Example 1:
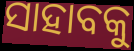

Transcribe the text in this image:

ସାହାବକୁ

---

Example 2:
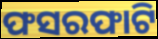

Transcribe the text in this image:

ଫସରଫାଟି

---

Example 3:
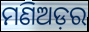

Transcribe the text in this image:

ମଣିଅଡ଼ର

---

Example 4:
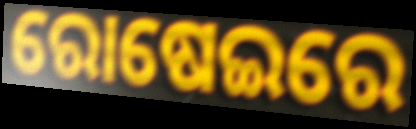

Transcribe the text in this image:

ରୋଷେଇରେ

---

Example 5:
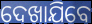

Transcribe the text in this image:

ଦେଖାଯିବେ